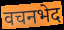
वचनभेद